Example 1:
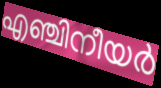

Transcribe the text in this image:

എഞ്ചിനീയർ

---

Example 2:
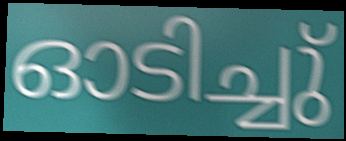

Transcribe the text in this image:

ഓടിച്ചു്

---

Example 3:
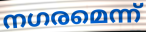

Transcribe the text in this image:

നഗരമെന്ന്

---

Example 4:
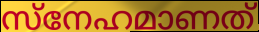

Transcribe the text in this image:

സ്നേഹമാണത്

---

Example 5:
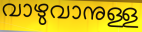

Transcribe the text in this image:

വാഴുവാനുള്ള